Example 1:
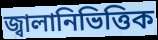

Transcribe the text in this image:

জ্বালানিভিত্তিক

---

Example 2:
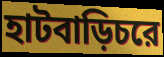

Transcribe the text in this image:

হাটবাড়িচরে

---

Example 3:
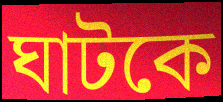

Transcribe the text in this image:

ঘাটকে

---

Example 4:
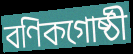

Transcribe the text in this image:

বণিকগোষ্ঠী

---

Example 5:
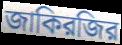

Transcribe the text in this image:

জাকিরজির